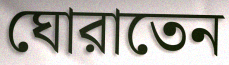
ঘোরাতেন